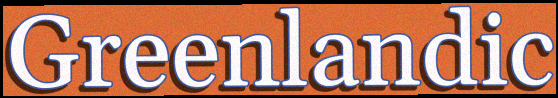
Greenlandic